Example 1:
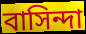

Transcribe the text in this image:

বাসিন্দা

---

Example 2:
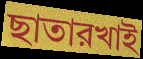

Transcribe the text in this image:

ছাতারখাই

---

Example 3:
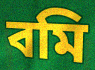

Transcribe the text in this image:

বমি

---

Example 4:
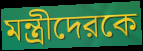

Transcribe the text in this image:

মন্ত্রীদেরকে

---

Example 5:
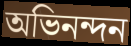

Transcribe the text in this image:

অভিনন্দন